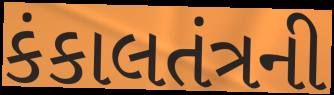
કંકાલતંત્રની